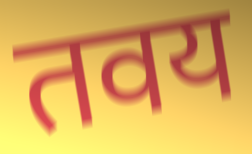
तवय